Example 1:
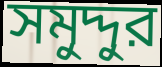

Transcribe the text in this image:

সমুদ্দুর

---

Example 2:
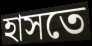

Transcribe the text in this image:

হাসতে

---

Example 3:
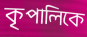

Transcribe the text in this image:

কৃপালিকে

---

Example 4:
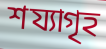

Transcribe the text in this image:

শয্যাগৃহ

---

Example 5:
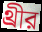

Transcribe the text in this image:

থ্রীর